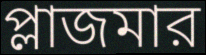
প্লাজমার